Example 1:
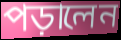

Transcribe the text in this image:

পড়ালেন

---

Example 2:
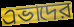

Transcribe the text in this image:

এভাদের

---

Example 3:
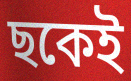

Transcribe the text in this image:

ছকেই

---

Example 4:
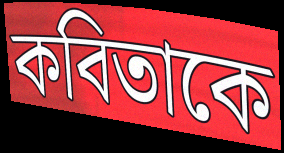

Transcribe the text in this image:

কবিতাকে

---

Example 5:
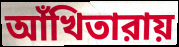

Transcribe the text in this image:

আঁখিতারায়